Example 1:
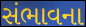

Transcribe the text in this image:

સંભાવના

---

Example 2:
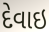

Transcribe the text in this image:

દેવાઇ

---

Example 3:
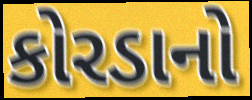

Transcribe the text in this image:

કોરડાનો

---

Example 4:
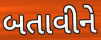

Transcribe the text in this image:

બતાવીને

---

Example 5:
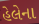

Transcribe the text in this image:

હેલેના